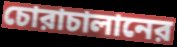
চোরাচালানের